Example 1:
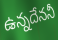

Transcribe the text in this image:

ఉన్నదేననీ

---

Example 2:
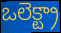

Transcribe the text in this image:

ఒలెక్ట్రా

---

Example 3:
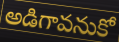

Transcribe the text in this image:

అడిగావనుకో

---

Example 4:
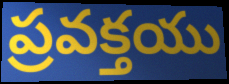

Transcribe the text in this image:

ప్రవక్తయు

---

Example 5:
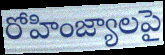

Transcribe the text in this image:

రోహింజ్యాలపై